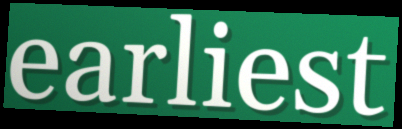
earliest